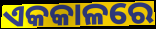
ଏକକାଳରେ